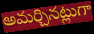
అమర్చినట్లుగా